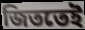
জিততেই